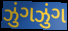
ઝુંગઝુંગ